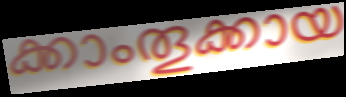
ക്കാംതൂക്കായ